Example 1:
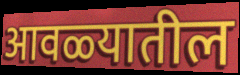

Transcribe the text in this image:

आवळ्यातील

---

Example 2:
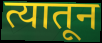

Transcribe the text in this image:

त्यातून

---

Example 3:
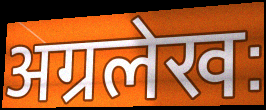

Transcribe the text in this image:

अग्रलेखः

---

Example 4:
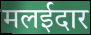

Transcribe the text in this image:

मलईदार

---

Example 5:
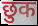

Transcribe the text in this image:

छुक